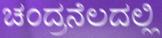
ಚಂದ್ರನೆಲದಲ್ಲಿ